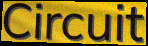
Circuit